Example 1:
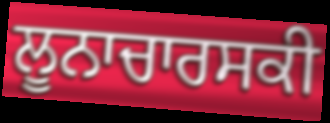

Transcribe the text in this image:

ਲੂਨਾਚਾਰਸਕੀ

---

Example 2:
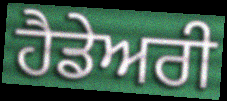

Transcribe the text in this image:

ਹੈਡੇਅਰੀ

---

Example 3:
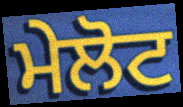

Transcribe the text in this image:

ਮੇਲੋਟ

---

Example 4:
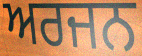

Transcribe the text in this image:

ਅਰਜਨ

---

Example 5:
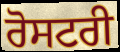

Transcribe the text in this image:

ਰੋਸਟਰੀ